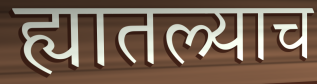
ह्यातल्याच